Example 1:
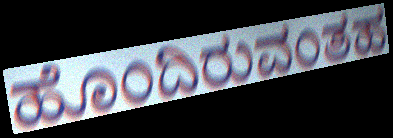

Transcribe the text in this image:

ಹೊಂದಿರುವಂತಹ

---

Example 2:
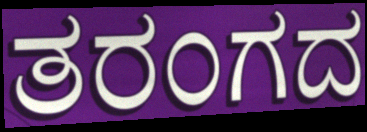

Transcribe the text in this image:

ತರಂಗದ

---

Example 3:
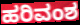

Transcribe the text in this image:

ಹರಿವಂಶ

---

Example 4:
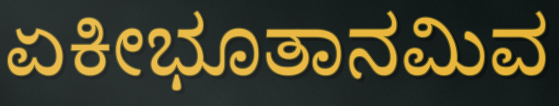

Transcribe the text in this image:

ಏಕೀಭೂತಾನಮಿವ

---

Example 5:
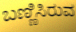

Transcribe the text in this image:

ಬಣ್ಣಿಸಿರುವ